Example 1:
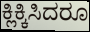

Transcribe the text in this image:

ಕ್ಲಿಕ್ಕಿಸಿದರೂ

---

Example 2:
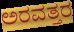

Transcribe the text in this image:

ಅರವತ್ತರ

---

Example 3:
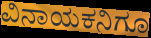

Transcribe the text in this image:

ವಿನಾಯಕನಿಗೂ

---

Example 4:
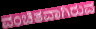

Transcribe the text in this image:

ವಂಚಿತವಾಗಿರುವ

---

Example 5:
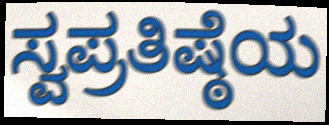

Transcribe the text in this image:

ಸ್ವಪ್ರತಿಷ್ಠೆಯ